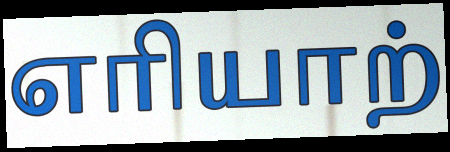
எரியாற்